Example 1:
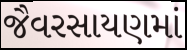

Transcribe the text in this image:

જૈવરસાયણમાં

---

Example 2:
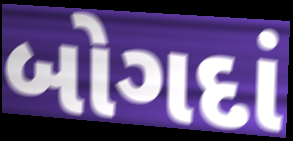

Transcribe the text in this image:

બોગદાં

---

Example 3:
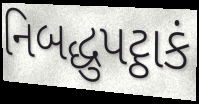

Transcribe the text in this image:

નિબદ્ધુપટ્ઠાકં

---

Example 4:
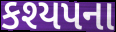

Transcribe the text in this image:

કશ્યપના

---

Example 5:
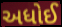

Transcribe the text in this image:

અધોઈ